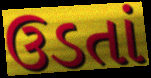
ઉડતાં